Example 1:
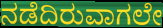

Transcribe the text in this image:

ನಡೆದಿರುವಾಗಲೇ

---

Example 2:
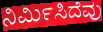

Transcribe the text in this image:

ನಿರ್ಮಿಸಿದೆವು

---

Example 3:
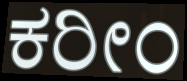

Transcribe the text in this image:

ಕರೀಂ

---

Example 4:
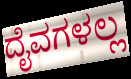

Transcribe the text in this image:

ದೈವಗಳಲ್ಲ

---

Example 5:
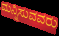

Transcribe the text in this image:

ಮನ್ನಿಸುವವರು